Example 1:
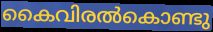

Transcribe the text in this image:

കൈവിരൽകൊണ്ടു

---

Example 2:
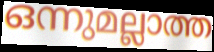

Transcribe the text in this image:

ഒന്നുമല്ലാത്ത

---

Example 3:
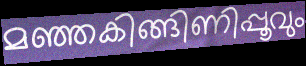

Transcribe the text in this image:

മഞ്ഞകിങ്ങിണിപ്പൂവും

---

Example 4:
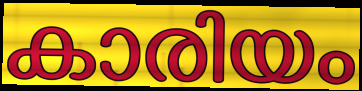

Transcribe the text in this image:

കാരിയം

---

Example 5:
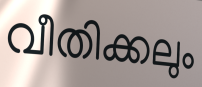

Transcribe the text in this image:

വീതിക്കലും